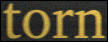
torn